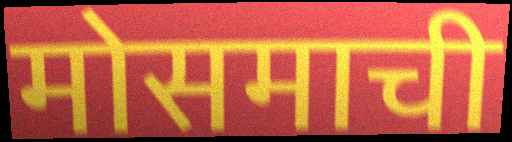
मोसमाची